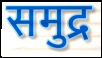
समुद्र